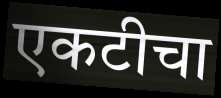
एकटीचा